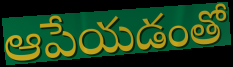
ఆపేయడంతో